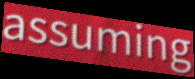
assuming